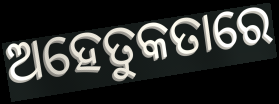
ଅହେତୁକତାରେ